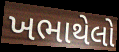
ખભાથેલો